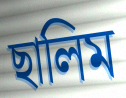
ছালিম